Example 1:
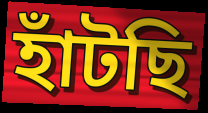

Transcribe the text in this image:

হাঁটছি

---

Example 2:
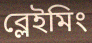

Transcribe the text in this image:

ব্লেইমিং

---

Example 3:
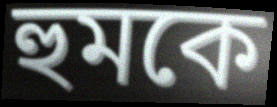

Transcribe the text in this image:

হুমকে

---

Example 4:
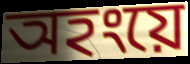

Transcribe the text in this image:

অহংয়ে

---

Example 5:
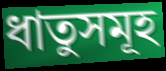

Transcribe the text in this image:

ধাতুসমূহ